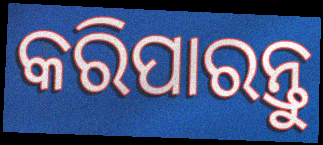
କରିପାରନ୍ତୁ